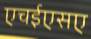
एचईएसए